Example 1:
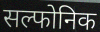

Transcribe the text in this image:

सल्फोनिक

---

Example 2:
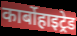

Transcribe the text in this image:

कार्बोहाइट्रेड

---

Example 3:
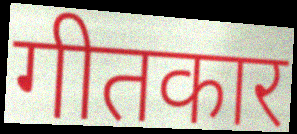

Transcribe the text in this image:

गीतकार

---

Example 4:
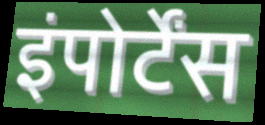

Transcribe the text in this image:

इंपोर्टेंस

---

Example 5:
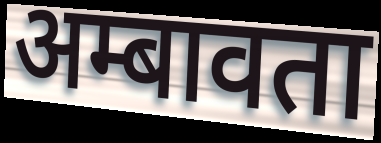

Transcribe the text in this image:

अम्बावता